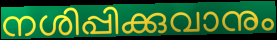
നശിപ്പിക്കുവാനും